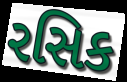
રસિક